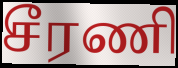
சீரணி